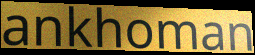
ankhoman